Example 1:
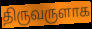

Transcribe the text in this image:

திருவருளாக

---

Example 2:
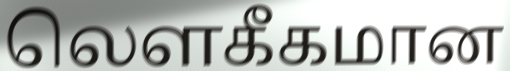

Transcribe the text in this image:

லெளகீகமான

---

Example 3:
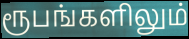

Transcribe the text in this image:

ரூபங்களிலும்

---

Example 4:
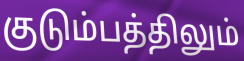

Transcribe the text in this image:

குடும்பத்திலும்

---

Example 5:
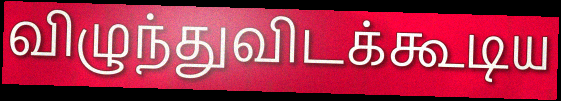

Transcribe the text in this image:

விழுந்துவிடக்கூடிய